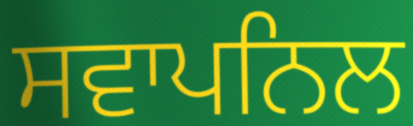
ਸਵਾਪਨਿਲ